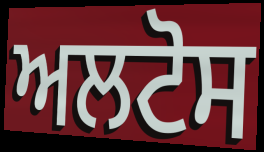
ਅਲਟੋਸ